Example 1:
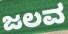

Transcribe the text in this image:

ಜಲವ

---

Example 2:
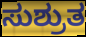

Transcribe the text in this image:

ಸುಶ್ರುತ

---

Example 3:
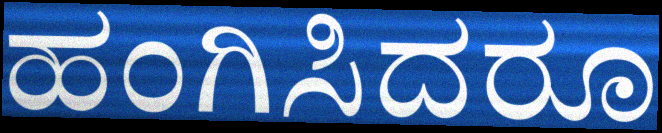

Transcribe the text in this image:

ಹಂಗಿಸಿದರೂ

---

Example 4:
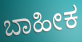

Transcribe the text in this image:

ಬಾಹೀಕ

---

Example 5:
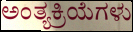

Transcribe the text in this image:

ಅಂತ್ಯಕ್ರಿಯೆಗಳು